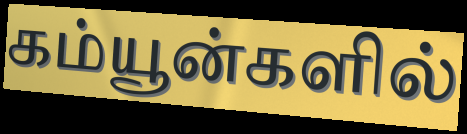
கம்யூன்களில்